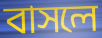
বাসলে